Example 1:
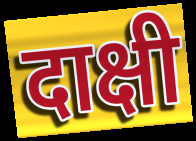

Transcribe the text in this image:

दाक्षी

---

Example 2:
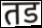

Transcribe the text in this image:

तड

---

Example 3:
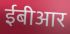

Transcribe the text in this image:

ईबीआर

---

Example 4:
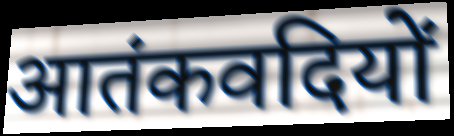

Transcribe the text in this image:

आतंकवदियों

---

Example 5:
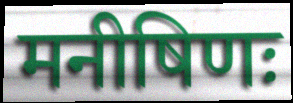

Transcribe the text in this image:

मनीषिणः